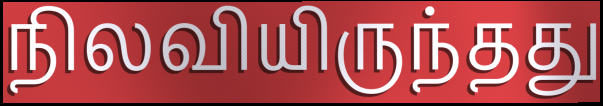
நிலவியிருந்தது